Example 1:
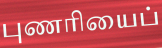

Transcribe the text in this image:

புணரியைப்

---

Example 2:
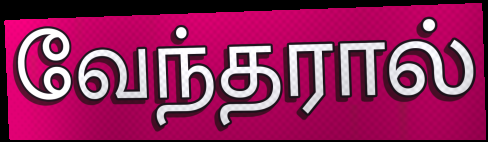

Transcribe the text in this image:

வேந்தரால்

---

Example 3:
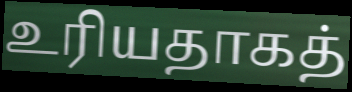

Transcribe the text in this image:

உரியதாகத்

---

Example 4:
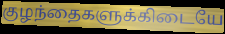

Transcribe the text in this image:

குழந்தைகளுக்கிடையே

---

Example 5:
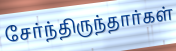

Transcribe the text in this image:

சேர்ந்திருந்தார்கள்